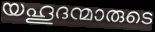
യഹൂദന്മാരുടെ